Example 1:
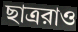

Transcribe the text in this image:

ছাত্ররাও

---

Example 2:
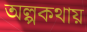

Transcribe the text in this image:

অল্পকথায়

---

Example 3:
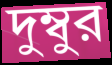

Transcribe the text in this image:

দুম্বুর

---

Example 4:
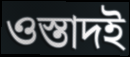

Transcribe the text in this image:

ওস্তাদই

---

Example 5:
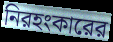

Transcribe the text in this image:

নিরহংকারের